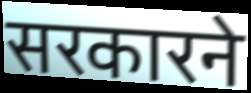
सरकारने